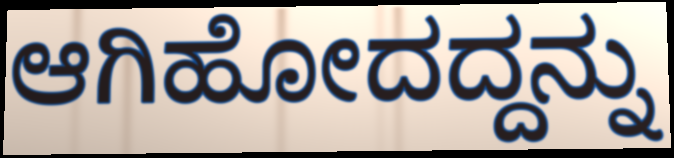
ಆಗಿಹೋದದ್ದನ್ನು